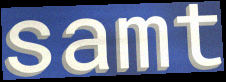
samt